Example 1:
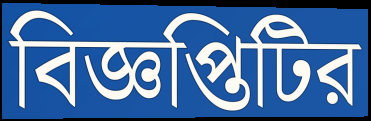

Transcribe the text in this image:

বিজ্ঞপ্তিটির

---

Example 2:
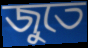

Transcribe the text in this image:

জুতে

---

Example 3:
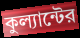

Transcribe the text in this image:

কুল্যান্টের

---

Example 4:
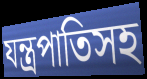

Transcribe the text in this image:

যন্ত্রপাতিসহ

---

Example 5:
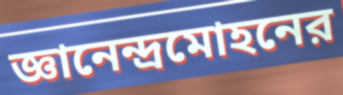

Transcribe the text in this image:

জ্ঞানেন্দ্রমোহনের